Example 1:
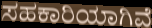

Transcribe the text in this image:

ಸಹಕಾರಿಯಾಗಿವೆ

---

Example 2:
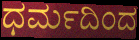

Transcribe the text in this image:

ಧರ್ಮದಿಂದ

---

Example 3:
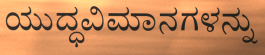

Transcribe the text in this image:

ಯುದ್ಧವಿಮಾನಗಳನ್ನು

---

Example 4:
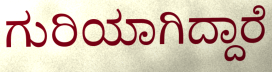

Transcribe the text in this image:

ಗುರಿಯಾಗಿದ್ದಾರೆ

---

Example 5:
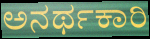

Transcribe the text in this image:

ಅನರ್ಥಕಾರಿ